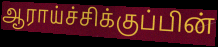
ஆராய்ச்சிக்குப்பின்